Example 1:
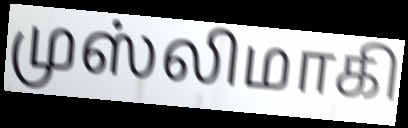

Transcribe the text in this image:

முஸ்லிமாகி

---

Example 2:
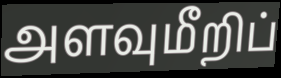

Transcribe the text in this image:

அளவுமீறிப்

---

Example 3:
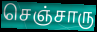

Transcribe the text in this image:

செஞ்சாரு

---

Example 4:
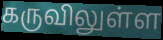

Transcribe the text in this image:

கருவிலுள்ள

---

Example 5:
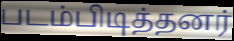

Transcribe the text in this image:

படம்பிடித்தனர்